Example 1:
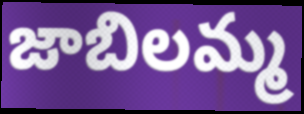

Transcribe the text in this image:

జాబిలమ్మ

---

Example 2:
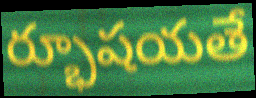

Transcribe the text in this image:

ర్భూషయతే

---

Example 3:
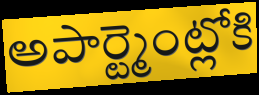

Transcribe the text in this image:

అపార్ట్మెంట్లోకి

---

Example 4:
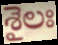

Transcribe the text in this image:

శైలః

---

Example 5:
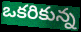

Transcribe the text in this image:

ఒకరికున్న